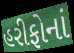
હરીફોનાં